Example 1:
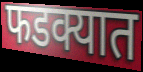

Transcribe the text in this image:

फडक्यात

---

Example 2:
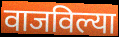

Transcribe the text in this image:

वाजविल्या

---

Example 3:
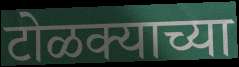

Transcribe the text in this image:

टोळक्याच्या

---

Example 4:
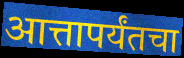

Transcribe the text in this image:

आत्तापर्यंतचा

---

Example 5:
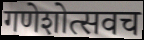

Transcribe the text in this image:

गणेशोत्सवच